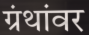
ग्रंथांवर